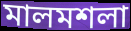
মালমশলা